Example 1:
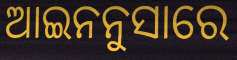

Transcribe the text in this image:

ଆଇନନୁସାରେ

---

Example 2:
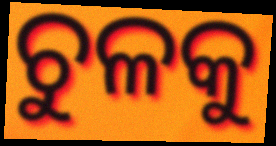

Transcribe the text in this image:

ଚୁଳକୁ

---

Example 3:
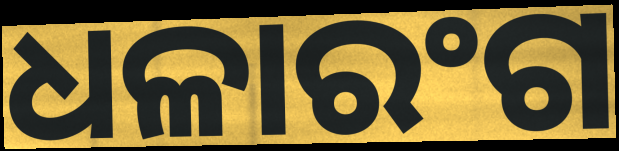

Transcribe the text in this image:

ଧଳାରଂଗ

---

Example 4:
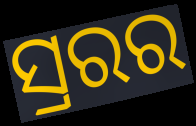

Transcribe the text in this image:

ସ୍ରରର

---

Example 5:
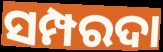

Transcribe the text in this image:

ସମ୍ପରଦା